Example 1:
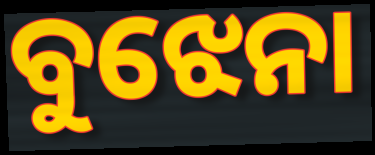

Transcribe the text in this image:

ବୁଝେନା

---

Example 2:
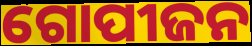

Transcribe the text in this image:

ଗୋପୀଜନ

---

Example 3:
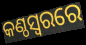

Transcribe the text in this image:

କଣ୍ଠସ୍ୱରରେ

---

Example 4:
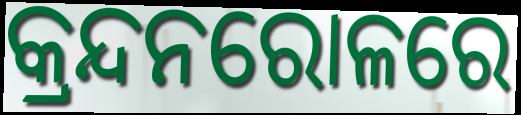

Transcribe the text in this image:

କ୍ରନ୍ଦନରୋଳରେ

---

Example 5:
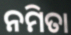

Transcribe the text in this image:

ନମିତା